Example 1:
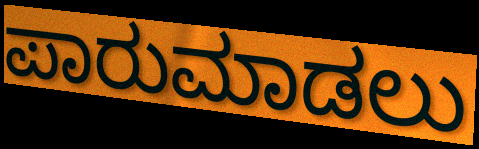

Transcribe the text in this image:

ಪಾರುಮಾಡಲು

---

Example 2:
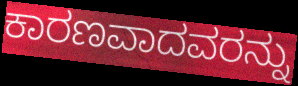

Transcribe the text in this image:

ಕಾರಣವಾದವರನ್ನು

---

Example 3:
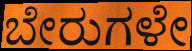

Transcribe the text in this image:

ಬೇರುಗಳೇ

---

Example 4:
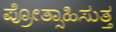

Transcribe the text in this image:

ಪ್ರೋತ್ಸಾಹಿಸುತ್ತ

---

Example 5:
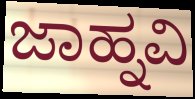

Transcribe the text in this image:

ಜಾಹ್ನವಿ